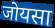
जोयसा